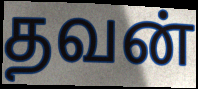
தவன்